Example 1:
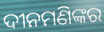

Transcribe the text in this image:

ଦୀନମଣିଙ୍କର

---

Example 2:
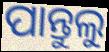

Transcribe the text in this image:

ପାନ୍ତୁଲୁ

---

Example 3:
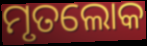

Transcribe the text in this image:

ମୃତଲୋକ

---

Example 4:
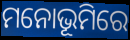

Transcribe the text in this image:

ମନୋଭୂମିରେ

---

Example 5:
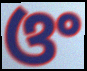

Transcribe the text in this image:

ଓଂ